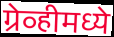
ग्रेव्हीमध्ये